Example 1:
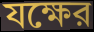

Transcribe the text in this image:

যক্ষের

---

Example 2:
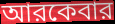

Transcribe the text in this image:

আরকেবার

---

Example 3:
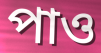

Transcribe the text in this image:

পাও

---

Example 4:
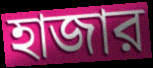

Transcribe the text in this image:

হাজার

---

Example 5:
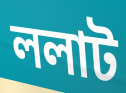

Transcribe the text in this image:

ললাট